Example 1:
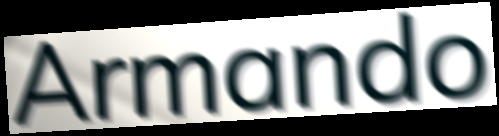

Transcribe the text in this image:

Armando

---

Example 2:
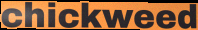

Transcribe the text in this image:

chickweed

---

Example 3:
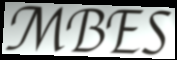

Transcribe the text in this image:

MBES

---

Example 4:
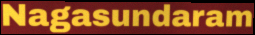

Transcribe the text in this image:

Nagasundaram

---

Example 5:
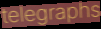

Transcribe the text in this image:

telegraphs